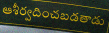
ఆశీర్వదించబడతాడు